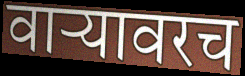
वाऱ्यावरच